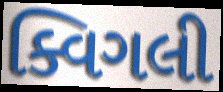
ક્વિગલી